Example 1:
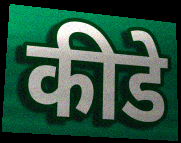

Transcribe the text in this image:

कीडे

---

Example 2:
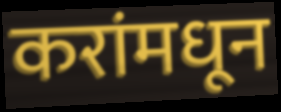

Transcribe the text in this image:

करांमधून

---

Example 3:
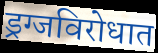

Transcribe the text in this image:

ड्रग्जविरोधात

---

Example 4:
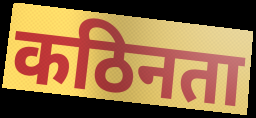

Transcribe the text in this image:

कठिनता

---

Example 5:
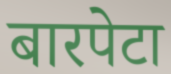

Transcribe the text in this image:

बारपेटा